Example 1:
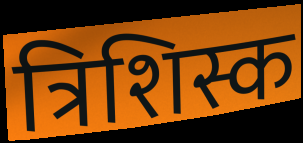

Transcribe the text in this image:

त्रिशिस्क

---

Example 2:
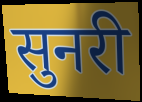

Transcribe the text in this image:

सुनरी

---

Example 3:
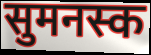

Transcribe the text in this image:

सुमनस्क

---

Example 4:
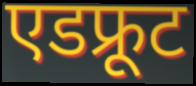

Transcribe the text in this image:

एडफ्रूट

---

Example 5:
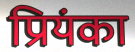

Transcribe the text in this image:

प्रियंका